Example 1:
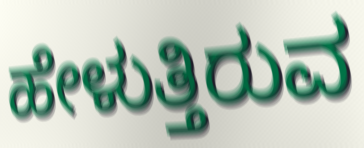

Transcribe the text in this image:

ಹೇಳುತ್ತಿರುವ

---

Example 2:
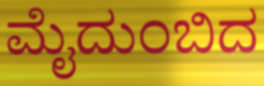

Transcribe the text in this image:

ಮೈದುಂಬಿದ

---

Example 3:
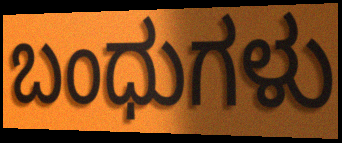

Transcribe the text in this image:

ಬಂಧುಗಳು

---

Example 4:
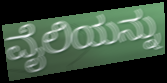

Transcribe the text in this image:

ವೈಲಿಯನ್ನು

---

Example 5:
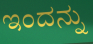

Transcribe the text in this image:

ಇಂದನ್ನು